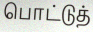
பொட்டுத்